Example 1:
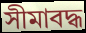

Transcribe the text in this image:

সীমাবদ্ধ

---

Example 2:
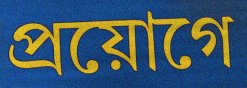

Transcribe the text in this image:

প্ৰয়োগে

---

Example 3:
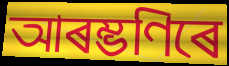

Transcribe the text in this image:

আৰম্ভণিৰে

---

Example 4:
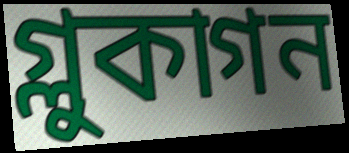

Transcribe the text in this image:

গ্লুকাগন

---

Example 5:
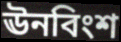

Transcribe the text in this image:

ঊনবিংশ